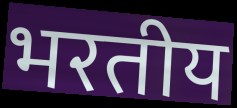
भरतीय